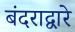
बंदराद्वारे